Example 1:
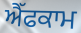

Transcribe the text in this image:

ਐੱਫਕਾਮ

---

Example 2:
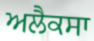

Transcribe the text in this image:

ਅਲੈਕਸਾ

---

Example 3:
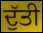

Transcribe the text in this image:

ਦੁੱਤੀ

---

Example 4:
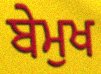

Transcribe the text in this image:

ਬੇਮੁਖ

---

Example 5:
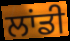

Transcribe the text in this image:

ਲਾਂਡੀ